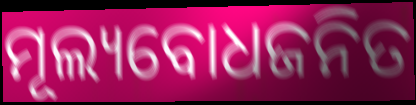
ମୂଲ୍ୟବୋଧଜନିତ